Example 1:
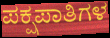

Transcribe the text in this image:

ಪಕ್ಷಪಾತಿಗಳ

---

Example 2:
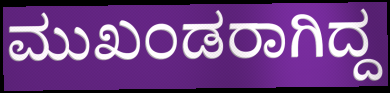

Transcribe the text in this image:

ಮುಖಂಡರಾಗಿದ್ದ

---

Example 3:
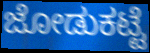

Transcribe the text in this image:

ಜೋಡುಕಟ್ಟೆ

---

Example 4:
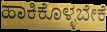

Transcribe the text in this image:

ಹಾಕಿಕೊಳ್ಳಬೇಕೆ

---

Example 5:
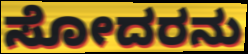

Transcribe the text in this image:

ಸೋದರನು